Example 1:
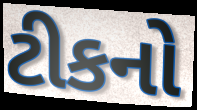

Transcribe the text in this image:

ટીકનો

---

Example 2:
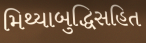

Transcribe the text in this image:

મિથ્યાબુદ્ધિસહિત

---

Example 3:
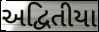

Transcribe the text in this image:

અદ્વિતીયા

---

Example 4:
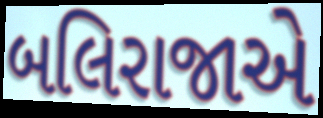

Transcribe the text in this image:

બલિરાજાએ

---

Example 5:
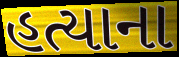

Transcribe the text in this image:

હત્યાના